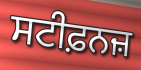
ਸਟੀਫ਼ਨਜ਼